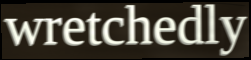
wretchedly